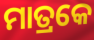
ମାତ୍ରକେ